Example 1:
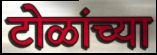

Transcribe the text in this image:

टोळांच्या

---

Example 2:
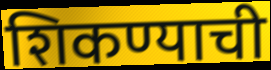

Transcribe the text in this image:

शिकण्याची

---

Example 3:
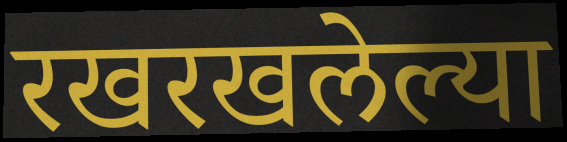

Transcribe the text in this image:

रखरखलेल्या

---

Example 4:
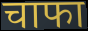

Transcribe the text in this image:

चाफा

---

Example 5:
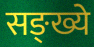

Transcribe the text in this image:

सङ्ख्ये